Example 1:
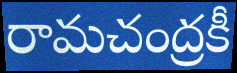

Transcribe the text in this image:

రామచంద్రకీ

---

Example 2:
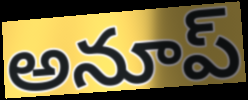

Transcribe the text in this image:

అనూప్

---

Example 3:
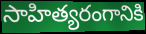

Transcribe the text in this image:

సాహిత్యరంగానికి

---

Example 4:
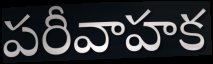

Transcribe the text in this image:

పరీవాహక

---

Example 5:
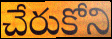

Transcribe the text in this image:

చేరుకోని